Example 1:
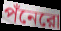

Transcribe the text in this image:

পঁনেরো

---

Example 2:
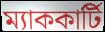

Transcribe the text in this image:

ম্যাককার্টি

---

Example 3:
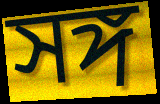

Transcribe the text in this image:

সঙ্গ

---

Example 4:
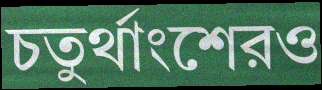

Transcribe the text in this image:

চতুর্থাংশেরও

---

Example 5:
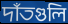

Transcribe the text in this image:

দাঁতগুলি